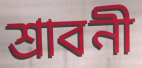
শ্রাবনী